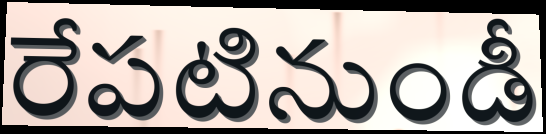
రేపటినుండీ